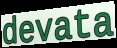
devata